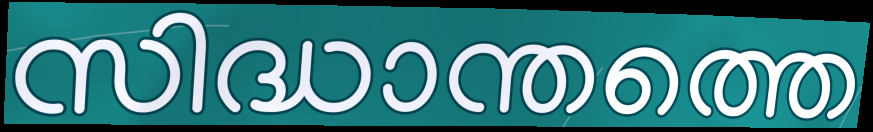
സിദ്ധാന്തത്തെ